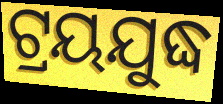
ଟ୍ରୟଯୁଦ୍ଧ